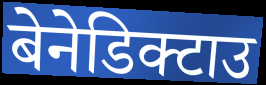
बेनेडिक्टाउ